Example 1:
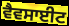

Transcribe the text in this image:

ਵੈਵਸਾਈਟ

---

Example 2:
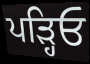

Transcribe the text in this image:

ਪੜ੍ਹਿਓ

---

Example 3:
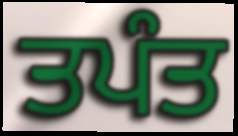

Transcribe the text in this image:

ਤਪੰਤ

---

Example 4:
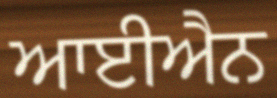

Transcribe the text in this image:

ਆਈਐਨ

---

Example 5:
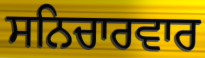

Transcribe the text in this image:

ਸਨਿਚਾਰਵਾਰ